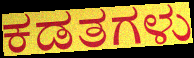
ಕಡತಗಳು